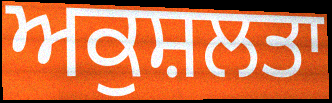
ਅਕੁਸ਼ਲਤਾ